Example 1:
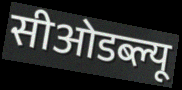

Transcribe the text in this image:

सीओडब्ल्यू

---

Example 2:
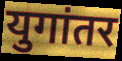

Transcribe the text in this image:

युगांतर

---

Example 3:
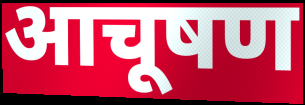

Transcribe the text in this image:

आचूषण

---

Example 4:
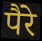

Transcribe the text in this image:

पैरे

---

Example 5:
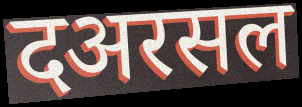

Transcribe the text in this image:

दअरसल